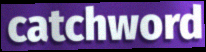
catchword